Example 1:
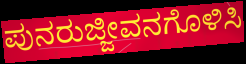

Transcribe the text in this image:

ಪುನರುಜ್ಜೀವನಗೊಳಿಸಿ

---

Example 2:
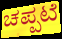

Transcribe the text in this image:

ಚಪ್ಪಟೆ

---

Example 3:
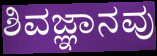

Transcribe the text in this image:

ಶಿವಜ್ಞಾನವು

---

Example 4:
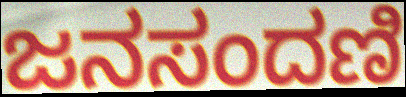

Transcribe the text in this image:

ಜನಸಂದಣಿ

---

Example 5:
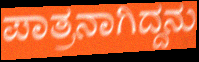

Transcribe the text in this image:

ಪಾತ್ರನಾಗಿದ್ದನು